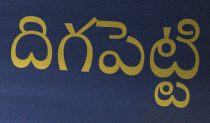
దిగపెట్టి